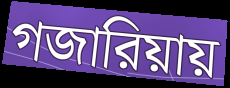
গজারিয়ায়